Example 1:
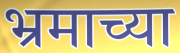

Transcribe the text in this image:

भ्रमाच्या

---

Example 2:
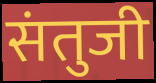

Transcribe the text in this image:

संतुजी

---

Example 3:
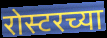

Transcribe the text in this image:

रोस्टरच्या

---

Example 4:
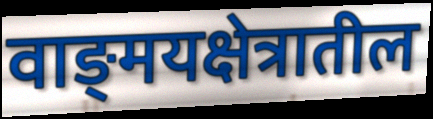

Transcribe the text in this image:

वाङ्मयक्षेत्रातील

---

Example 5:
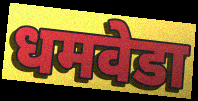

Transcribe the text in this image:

धमवेडा